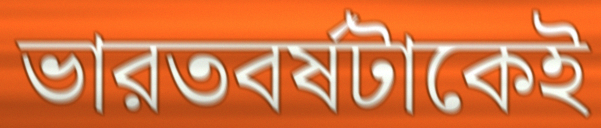
ভারতবর্ষটাকেই